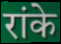
रांके